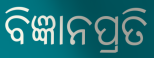
ବିଜ୍ଞାନପ୍ରତି